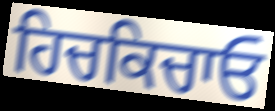
ਹਿਚਕਿਚਾਓ